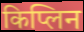
किप्लिन